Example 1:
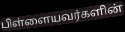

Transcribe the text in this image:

பிள்ளையவர்களின்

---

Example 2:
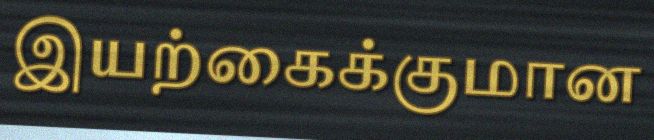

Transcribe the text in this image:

இயற்கைக்குமான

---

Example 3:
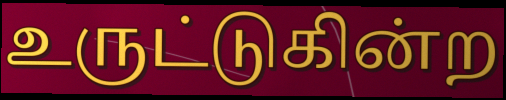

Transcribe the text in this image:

உருட்டுகின்ற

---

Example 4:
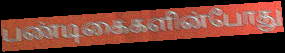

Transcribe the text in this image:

பண்டிகைகளின்போது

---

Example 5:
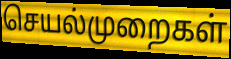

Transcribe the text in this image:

செயல்முறைகள்